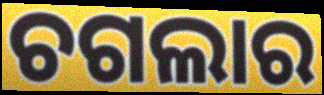
ଚଗଲାର